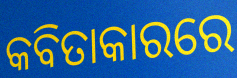
କବିତାକାରରେ